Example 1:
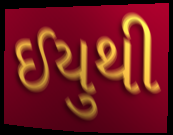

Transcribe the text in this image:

ઈયુથી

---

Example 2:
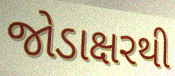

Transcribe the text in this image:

જોડાક્ષરથી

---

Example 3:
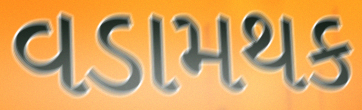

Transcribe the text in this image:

વડામથક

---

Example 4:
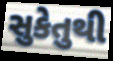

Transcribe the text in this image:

સુકેતુથી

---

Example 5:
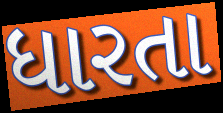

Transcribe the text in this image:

ધારતા